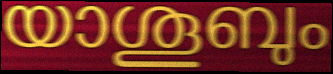
യാശൂബും